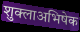
शुक्लाअभिषेक